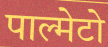
पाल्मेटो